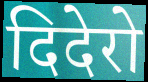
दिदेरो